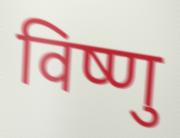
विष्‍णु